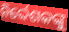
ନିର୍ଦ୍ଦେଶକଙ୍କୁ